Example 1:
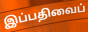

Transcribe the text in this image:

இப்பதிவைப்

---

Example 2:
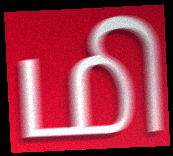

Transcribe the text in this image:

மி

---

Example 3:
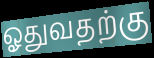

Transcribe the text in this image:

ஓதுவதற்கு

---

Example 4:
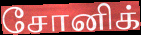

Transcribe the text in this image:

சோனிக்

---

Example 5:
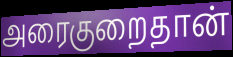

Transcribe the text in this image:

அரைகுறைதான்